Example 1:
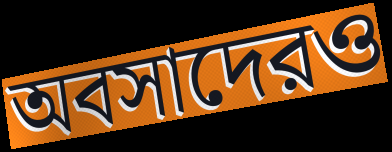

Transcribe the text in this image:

অবসাদেরও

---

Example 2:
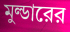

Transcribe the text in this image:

মুল্ডারের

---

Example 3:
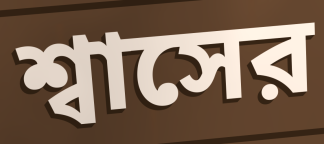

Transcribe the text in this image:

শ্বাসের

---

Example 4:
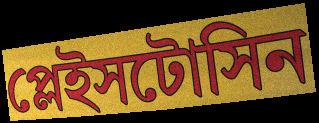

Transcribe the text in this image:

প্লেইসটোসিন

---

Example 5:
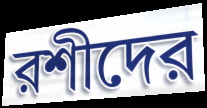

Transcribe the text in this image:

রশীদের